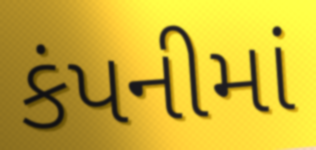
કંપનીમાં